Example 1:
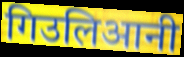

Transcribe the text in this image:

गिउलिआनी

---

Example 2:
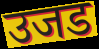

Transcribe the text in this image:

उजड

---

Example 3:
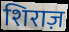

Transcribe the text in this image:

शिराज़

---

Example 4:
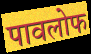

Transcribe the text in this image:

पावलोफ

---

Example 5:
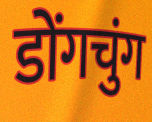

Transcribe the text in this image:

डोंगचुंग